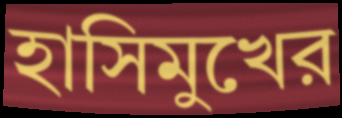
হাসিমুখের